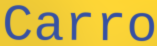
Carro